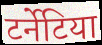
टर्नेटिया